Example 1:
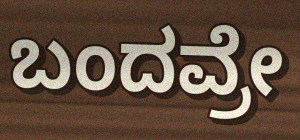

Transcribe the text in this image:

ಬಂದವ್ರೇ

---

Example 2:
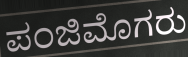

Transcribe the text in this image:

ಪಂಜಿಮೊಗರು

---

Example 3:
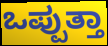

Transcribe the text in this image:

ಒಪ್ಪುತ್ತಾ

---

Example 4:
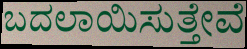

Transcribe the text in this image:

ಬದಲಾಯಿಸುತ್ತೇವೆ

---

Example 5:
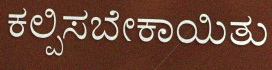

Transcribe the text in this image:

ಕಲ್ಪಿಸಬೇಕಾಯಿತು